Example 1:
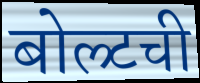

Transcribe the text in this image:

बोल्टची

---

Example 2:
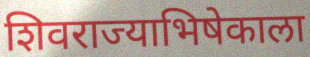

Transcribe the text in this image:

शिवराज्याभिषेकाला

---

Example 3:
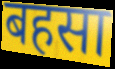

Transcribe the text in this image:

बहसा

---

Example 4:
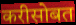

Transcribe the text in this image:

करीसोबत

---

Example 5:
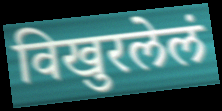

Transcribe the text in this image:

विखुरलेलं